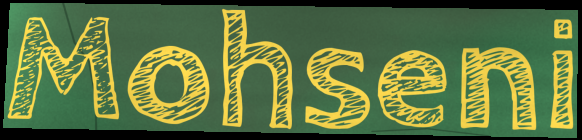
Mohseni